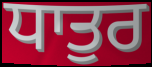
ਧਾਤੁਰ